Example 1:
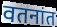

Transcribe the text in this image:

वतनांत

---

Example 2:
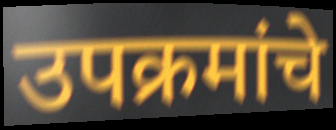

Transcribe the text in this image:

उपक्रमांचे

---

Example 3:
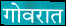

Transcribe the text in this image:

गोवरात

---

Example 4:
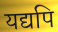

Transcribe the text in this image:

यद्यपि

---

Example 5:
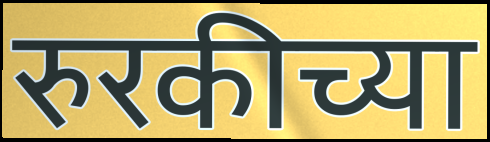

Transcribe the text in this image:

रुरकीच्या